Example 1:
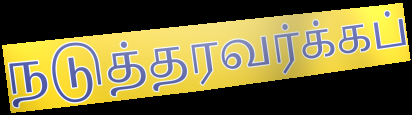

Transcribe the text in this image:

நடுத்தரவர்க்கப்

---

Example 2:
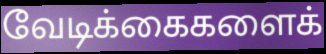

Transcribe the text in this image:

வேடிக்கைகளைக்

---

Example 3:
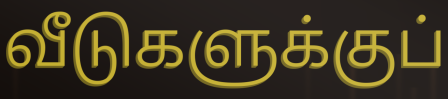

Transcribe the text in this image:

வீடுகளுக்குப்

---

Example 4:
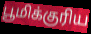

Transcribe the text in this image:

பூமிக்குரிய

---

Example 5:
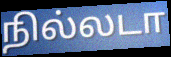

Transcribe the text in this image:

நில்லடா